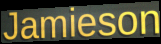
Jamieson